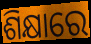
ଶିକ୍ଷାରେ